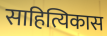
साहित्यिकास